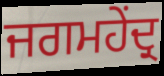
ਜਗਮਹੇਂਦ੍ਰ